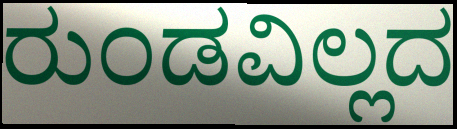
ರುಂಡವಿಲ್ಲದ